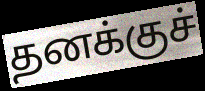
தனக்குச்